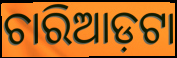
ଚାରିଆଡ଼ଟା